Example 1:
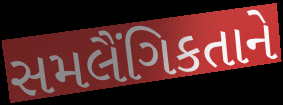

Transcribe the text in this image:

સમલૈંગિકતાને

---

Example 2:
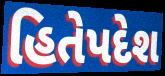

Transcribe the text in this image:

હિતેપદેશ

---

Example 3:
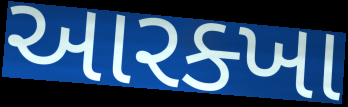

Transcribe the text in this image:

આરક્ખા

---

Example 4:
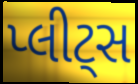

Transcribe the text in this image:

પ્લીટ્સ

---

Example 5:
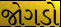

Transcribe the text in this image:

જોગડો